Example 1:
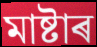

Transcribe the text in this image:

মাষ্টাৰ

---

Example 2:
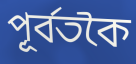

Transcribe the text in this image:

পূৰ্বতকৈ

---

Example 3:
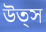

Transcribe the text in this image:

উত্স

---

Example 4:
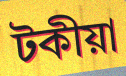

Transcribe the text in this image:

টকীয়া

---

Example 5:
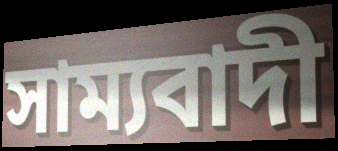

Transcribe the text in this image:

সাম্যবাদী